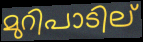
മുറിപാടില്